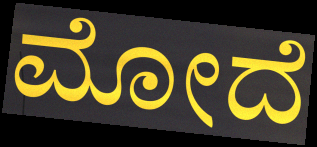
ಮೋದೆ